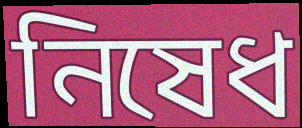
নিষেধ